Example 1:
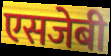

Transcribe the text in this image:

एसजेबी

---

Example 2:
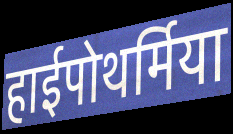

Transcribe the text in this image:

हाईपोथर्मिया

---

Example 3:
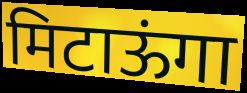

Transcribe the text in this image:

मिटाऊंगा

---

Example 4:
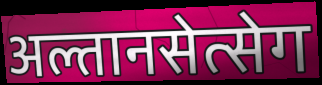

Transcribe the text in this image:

अल्तानसेत्सेग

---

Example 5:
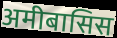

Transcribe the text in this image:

अमीबासिस